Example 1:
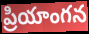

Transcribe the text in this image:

ప్రియాంగన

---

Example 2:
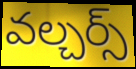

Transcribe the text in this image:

వల్చర్స్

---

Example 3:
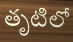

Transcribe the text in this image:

తృటిలో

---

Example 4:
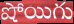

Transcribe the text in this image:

షోయిగు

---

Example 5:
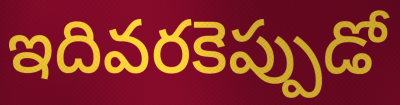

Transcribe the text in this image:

ఇదివరకెప్పుడో